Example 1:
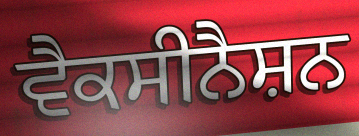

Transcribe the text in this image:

ਵੈਕਸੀਨੈਸ਼ਨ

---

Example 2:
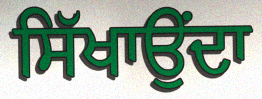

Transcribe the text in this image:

ਸਿੱਖਾਉਂਦਾ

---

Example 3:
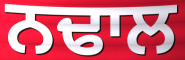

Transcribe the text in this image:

ਨਢਾਲ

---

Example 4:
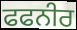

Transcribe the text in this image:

ਫਫਨੀਰ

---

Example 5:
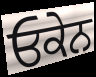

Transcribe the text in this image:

ਓਕੇਨ